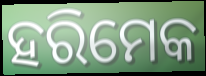
ହରିମେକ